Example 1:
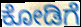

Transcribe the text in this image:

ಕೋಡಿಗೆ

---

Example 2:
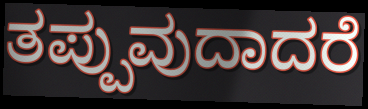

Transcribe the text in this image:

ತಪ್ಪುವುದಾದರೆ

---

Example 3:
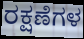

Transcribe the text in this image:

ರಕ್ಷಣೆಗಳ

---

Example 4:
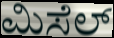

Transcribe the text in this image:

ಮಿಸೆಲ್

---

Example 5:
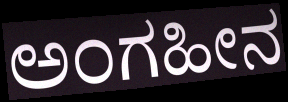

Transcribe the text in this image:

ಅಂಗಹೀನ